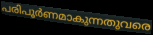
പരിപൂർണമാകുന്നതുവരെ